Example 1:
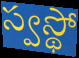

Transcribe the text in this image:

స్వస్థో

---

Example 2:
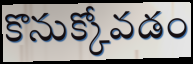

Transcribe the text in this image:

కొనుక్కోవడం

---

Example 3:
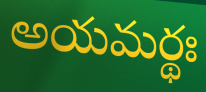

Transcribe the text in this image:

అయమర్థః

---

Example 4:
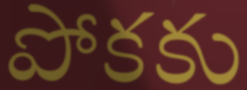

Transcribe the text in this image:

పోకకు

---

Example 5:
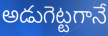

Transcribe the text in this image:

అడుగెట్టగానే